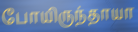
போயிருந்தாயா